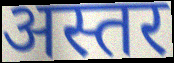
अस्तर